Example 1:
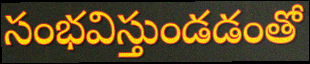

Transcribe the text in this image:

సంభవిస్తుండడంతో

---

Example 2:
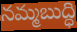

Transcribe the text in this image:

నమ్మబుద్ధి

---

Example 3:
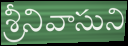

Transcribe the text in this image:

శ్రీనివాసుని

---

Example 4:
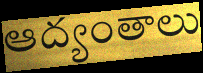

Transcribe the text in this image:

ఆద్యంతాలు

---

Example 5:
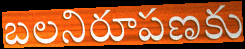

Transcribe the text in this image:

బలనిరూపణకు